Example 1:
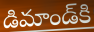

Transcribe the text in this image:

డిమాండ్‌కి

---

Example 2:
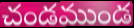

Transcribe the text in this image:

చండముండ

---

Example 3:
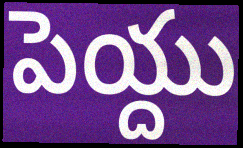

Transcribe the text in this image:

పెయ్దు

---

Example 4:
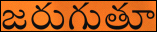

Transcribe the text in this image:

జరుగుతూ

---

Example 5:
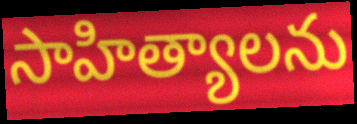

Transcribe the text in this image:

సాహిత్యాలను